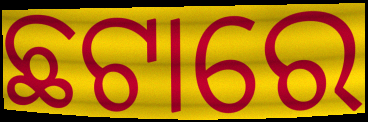
ଛଟାରେ